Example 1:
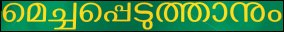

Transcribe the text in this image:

മെച്ചപ്പെടുത്താനും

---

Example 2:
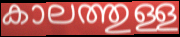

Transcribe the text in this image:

കാലത്തുള്ള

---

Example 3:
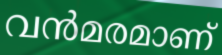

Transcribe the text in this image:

വൻമരമാണ്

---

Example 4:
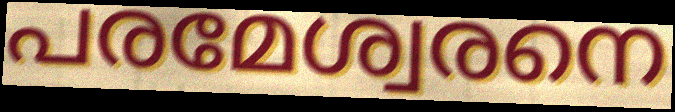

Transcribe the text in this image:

പരമേശ്വരനെ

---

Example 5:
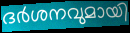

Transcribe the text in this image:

ദർശനവുമായി